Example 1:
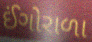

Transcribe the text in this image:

ઈંગોરાળા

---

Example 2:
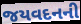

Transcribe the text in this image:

જયવદનની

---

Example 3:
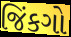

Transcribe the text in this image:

જિંકગો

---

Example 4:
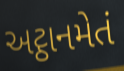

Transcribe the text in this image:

અટ્ઠાનમેતં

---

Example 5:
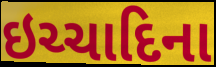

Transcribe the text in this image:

ઇચ્ચાદિના